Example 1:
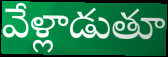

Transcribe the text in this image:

వేళ్లాడుతూ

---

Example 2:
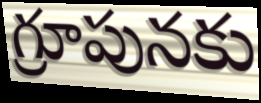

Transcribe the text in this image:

గ్రూపునకు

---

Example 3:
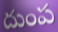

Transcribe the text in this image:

దుంప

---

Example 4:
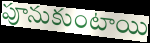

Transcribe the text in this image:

పూనుకుంటాయి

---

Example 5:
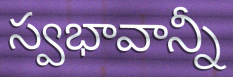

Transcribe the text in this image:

స్వభావాన్నీ